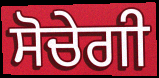
ਸੋਚੇਗੀ